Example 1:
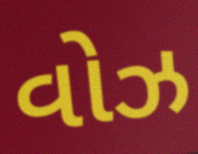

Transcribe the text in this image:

વોઝ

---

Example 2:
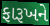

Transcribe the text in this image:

ફારૂખને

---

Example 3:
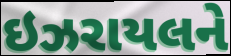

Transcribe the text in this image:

ઇઝરાયલને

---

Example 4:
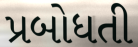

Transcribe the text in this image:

પ્રબોધતી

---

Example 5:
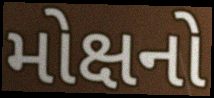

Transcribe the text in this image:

મોક્ષનો